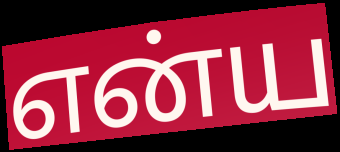
என்ய